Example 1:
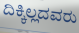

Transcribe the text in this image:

ದಿಕ್ಕಿಲ್ಲದವರು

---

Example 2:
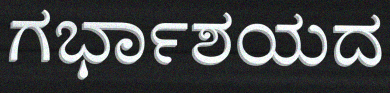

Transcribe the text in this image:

ಗರ್ಭಾಶಯದ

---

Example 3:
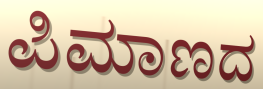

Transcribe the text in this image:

ಪಿಮಾಣದ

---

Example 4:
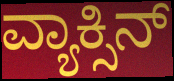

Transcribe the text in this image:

ವ್ಯಾಕ್ಸಿನ್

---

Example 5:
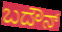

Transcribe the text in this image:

ಬದೌನ್